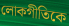
লোকগীতিকে